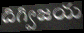
దిగ్విజయ